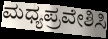
ಮಧ್ಯಪ್ರವೇಶಿಸಿ